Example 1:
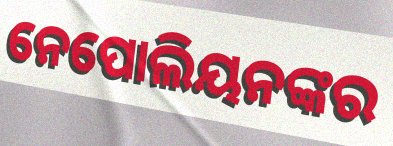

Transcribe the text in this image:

ନେପୋଲିୟନଙ୍କର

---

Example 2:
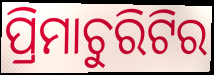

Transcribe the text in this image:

ପ୍ରିମାଚୁରିଟିର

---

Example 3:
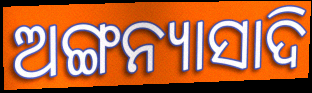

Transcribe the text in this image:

ଅଙ୍ଗନ୍ୟାସାଦି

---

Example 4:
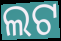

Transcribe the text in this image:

ଲଟ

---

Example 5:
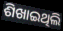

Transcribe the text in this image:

ଶିଖାଇଥିଲି